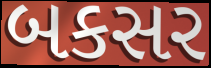
બકસર